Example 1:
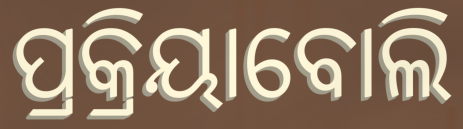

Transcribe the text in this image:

ପ୍ରକ୍ରିୟାବୋଲି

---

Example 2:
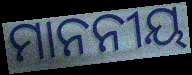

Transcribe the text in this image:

ମାନନୀୟ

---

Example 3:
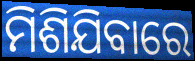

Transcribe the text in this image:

ମିଶିଯିବାରେ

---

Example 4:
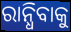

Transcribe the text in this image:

ରାନ୍ଧିବାକୁ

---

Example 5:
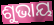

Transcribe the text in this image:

ଶୁଭାୟ